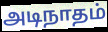
அடிநாதம்